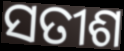
ସତୀଶ